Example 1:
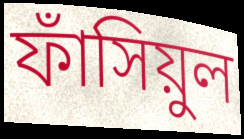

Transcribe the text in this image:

ফাঁসিয়ুল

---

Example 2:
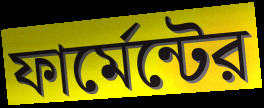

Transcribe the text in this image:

ফার্মেন্টের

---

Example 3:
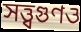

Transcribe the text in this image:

সত্ত্বগুণও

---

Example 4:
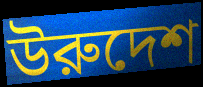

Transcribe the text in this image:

উরুদেশ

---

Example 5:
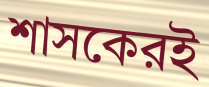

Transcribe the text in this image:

শাসকেরই